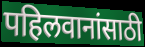
पहिलवानांसाठी